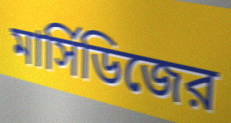
মার্সিডিজের